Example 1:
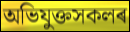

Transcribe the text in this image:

অভিযুক্তসকলৰ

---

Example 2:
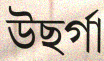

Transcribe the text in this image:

উছৰ্গা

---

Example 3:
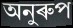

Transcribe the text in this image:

অনুৰুপ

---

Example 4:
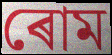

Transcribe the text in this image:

ৰোম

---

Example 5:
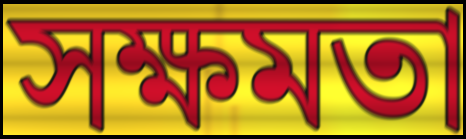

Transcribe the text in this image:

সক্ষমতা